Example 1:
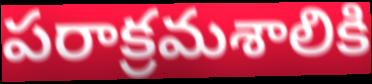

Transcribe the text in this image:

పరాక్రమశాలికి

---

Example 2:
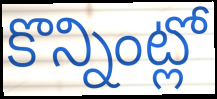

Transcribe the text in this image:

కొన్నింట్లో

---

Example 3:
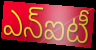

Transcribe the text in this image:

ఎన్ఐటీ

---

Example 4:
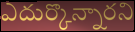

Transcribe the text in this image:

ఎదుర్కొన్నారని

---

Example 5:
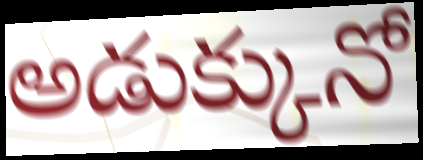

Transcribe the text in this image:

అడుక్కునో